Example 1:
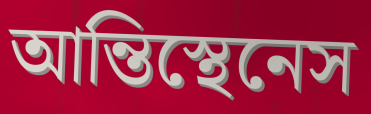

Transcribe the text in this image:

আন্তিস্থেনেস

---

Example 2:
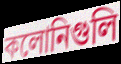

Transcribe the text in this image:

কলোনিগুলি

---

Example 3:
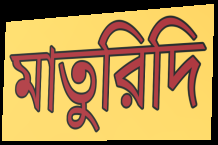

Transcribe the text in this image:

মাতুরিদি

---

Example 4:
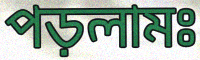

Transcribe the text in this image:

পড়লামঃ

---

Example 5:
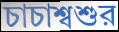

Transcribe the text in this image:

চাচাশ্বশুর